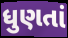
ધુણતાં